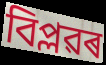
বিপ্লৱৰ